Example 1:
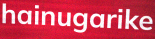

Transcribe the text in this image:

hainugarike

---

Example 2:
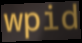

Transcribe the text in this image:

wpid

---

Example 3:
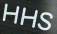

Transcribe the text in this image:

HHS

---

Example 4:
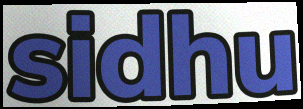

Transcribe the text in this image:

sidhu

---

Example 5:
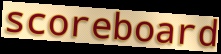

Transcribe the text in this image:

scoreboard